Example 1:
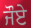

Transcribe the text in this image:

ਜੌਏ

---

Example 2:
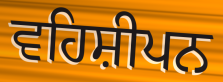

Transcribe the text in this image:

ਵਹਿਸ਼ੀਪਨ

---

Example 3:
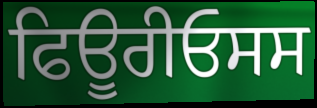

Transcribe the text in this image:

ਫਿਊਰੀਓਸਸ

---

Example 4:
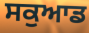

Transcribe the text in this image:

ਸਕੁਆਡ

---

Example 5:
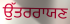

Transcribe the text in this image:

ਉੱਤਰਰਾਯਣ